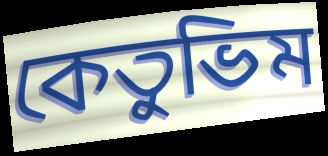
কেতুভিম